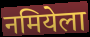
नमियेला